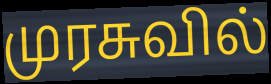
முரசுவில்